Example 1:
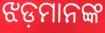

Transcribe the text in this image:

ଝଡ଼ମାନଙ୍କ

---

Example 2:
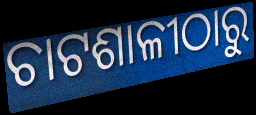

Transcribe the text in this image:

ଚାଟଶାଳୀଠାରୁ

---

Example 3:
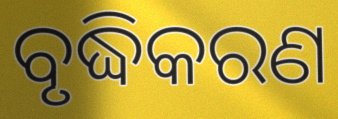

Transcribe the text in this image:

ବୃଦ୍ଧିକରଣ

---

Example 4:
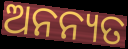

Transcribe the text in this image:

ଅନନ୍ୟତ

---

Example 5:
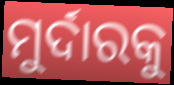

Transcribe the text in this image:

ମୁର୍ଦାରକୁ